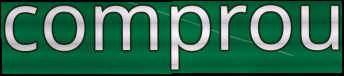
comprou